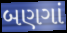
બણગાં